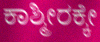
ಕಾಶ್ಮೀರಕ್ಕೇ